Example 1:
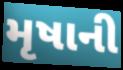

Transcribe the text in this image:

મૃષાની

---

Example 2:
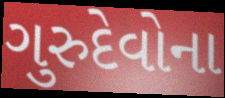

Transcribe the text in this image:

ગુરુદેવોના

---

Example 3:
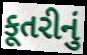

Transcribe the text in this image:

કૂતરીનું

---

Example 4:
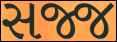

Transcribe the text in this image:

સજ્જ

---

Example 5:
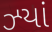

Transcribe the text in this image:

ઝ્યાં